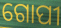
ଗୋପୀ